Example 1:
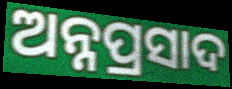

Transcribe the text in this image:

ଅନ୍ନପ୍ରସାଦ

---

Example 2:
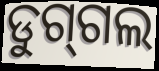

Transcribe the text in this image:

ଡୁଗ୍‌ଗଲ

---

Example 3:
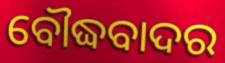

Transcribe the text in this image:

ବୌଦ୍ଧବାଦର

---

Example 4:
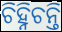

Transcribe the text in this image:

ଚିହ୍ନିଚନ୍ତି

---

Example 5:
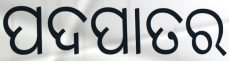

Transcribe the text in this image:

ପଦପାତର